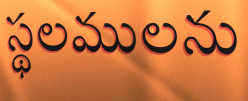
స్థలములను